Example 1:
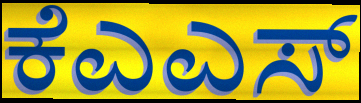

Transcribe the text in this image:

ಕೆಎಎಸ್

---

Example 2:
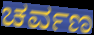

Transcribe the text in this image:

ಚರ್ವಣ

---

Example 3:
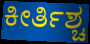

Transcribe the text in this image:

ಕೀರ್ತಿಶ್ಚ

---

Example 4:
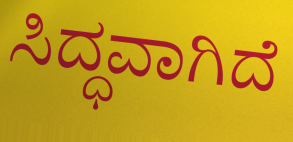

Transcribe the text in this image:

ಸಿದ್ಧವಾಗಿದೆ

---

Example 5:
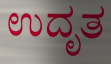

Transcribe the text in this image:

ಉದೃತ